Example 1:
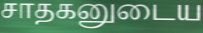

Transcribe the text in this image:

சாதகனுடைய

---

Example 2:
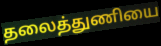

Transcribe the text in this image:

தலைத்துணியை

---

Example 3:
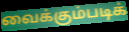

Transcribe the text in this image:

வைக்கும்படிக்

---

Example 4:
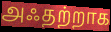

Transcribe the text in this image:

அஃதற்றாக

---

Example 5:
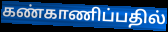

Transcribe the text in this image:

கண்காணிப்பதில்